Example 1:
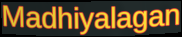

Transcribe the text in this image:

Madhiyalagan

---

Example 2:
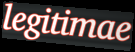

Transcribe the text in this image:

legitimae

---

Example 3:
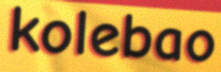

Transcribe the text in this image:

kolebao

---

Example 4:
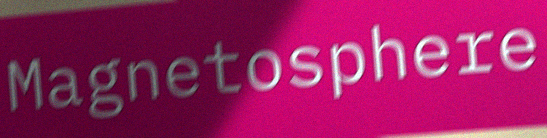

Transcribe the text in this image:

Magnetosphere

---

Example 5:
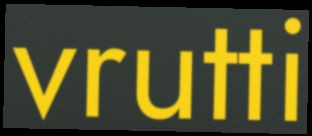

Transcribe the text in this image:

vrutti